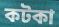
কটকা